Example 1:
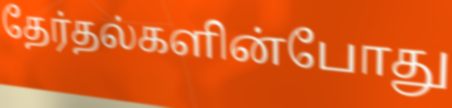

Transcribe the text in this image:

தேர்தல்களின்போது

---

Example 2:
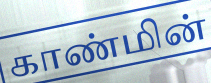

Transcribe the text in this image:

காண்மின்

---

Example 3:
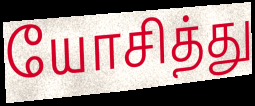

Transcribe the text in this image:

யோசித்து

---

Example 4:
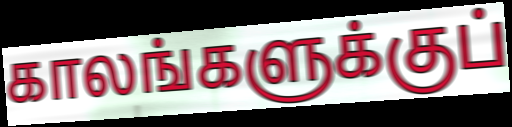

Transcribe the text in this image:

காலங்களுக்குப்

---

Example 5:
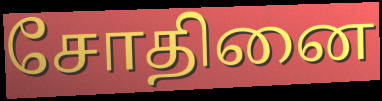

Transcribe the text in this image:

சோதினை